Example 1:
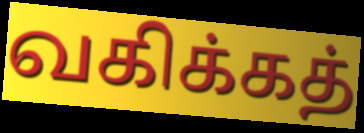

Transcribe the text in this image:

வகிக்கத்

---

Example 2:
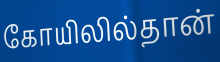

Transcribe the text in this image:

கோயிலில்தான்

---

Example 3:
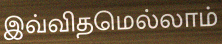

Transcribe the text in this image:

இவ்விதமெல்லாம்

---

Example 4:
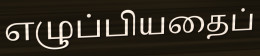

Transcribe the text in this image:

எழுப்பியதைப்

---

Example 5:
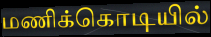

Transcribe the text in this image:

மணிக்கொடியில்